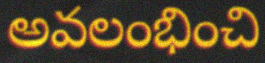
అవలంభించి